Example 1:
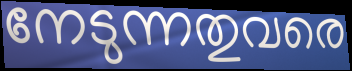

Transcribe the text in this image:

നേടുന്നതുവരെ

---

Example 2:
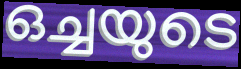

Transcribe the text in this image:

ഒച്ചയുടെ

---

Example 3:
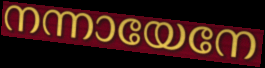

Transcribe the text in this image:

നന്നായേനേ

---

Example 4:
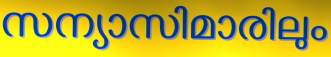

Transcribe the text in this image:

സന്യാസിമാരിലും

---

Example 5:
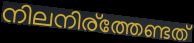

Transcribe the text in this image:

നിലനിര്ത്തേണ്ടത്